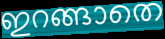
ഇറങ്ങാതെ